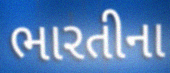
ભારતીના